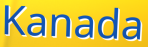
Kanada